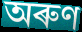
অৰুণ